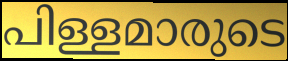
പിള്ളമാരുടെ